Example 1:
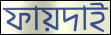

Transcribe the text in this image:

ফায়দাই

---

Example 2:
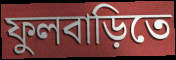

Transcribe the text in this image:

ফুলবাড়িতে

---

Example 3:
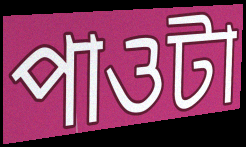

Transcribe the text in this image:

পাওটা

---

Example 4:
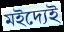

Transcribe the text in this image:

মইদ্যেই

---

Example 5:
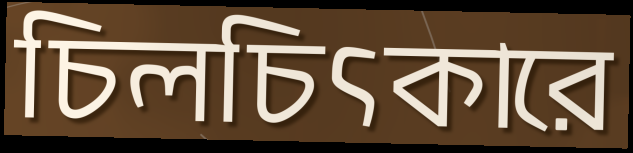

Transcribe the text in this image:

চিলচিৎকারে